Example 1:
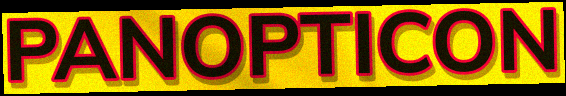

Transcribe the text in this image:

PANOPTICON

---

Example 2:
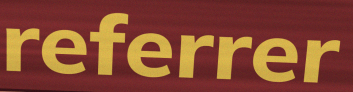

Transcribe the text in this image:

referrer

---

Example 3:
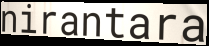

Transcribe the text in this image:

nirantara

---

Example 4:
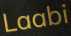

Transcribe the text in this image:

Laabi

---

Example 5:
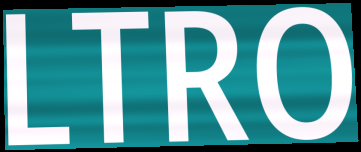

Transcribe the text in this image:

LTRO